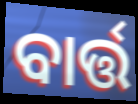
ବାର୍ତ୍ତ